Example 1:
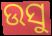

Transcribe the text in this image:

ଉସୁ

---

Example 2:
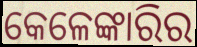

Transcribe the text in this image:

କେଳେଙ୍କାରିର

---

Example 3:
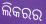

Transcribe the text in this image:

ଲିକରର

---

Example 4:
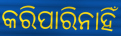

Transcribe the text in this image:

କରିପାରିନାହିଁ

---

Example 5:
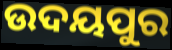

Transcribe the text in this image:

ଉଦୟପୁର